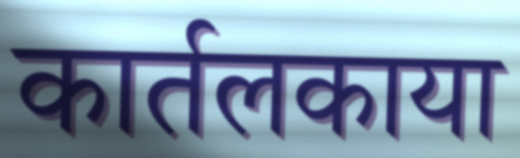
कार्तलकाया